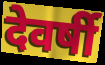
देवर्षी